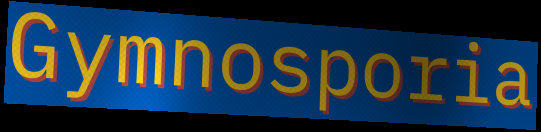
Gymnosporia